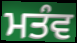
ਮਤੰਵ